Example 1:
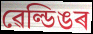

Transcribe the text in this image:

ৱেল্ডিঙৰ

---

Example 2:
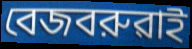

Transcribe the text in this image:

বেজবৰুৱাই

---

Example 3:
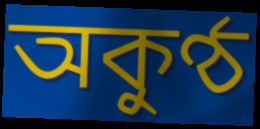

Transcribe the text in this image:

অকুণ্ঠ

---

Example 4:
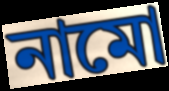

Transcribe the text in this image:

নামো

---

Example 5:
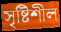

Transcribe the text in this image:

সৃষ্টিশীল